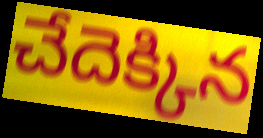
చేదెక్కిన